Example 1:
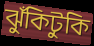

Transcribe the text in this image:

ঝুঁকিটুকি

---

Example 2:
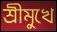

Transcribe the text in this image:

শ্রীমুখে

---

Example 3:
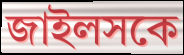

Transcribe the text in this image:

জাইলসকে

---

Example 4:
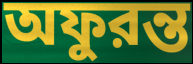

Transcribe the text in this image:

অফুরন্ত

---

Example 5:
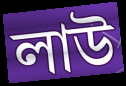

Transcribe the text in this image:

লাউ